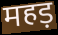
महड़